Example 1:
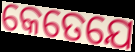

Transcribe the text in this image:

କେତେଯେ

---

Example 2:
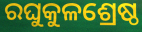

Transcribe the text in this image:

ରଘୁକୁଳଶ୍ରେଷ୍ଠ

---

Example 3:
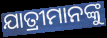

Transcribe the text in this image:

ଯାତ୍ରୀମାନଙ୍କୁ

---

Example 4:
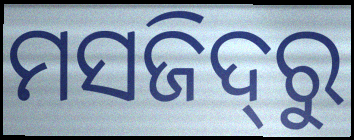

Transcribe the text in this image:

ମସଜିଦ୍‌ରୁ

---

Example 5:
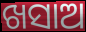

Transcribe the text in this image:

ଖସାଅ